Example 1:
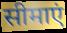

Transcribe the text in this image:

सीमाएं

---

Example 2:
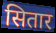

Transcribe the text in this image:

सितार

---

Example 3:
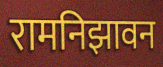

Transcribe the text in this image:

रामनिझावन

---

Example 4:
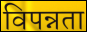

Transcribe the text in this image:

विपन्नता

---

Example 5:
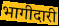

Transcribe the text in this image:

भागीदारी